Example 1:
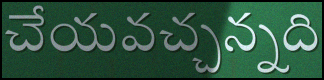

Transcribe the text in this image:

చేయవచ్చన్నది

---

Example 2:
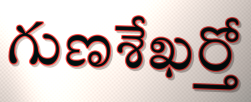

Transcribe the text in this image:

గుణశేఖర్తో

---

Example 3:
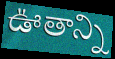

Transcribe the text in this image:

ఊతాన్ని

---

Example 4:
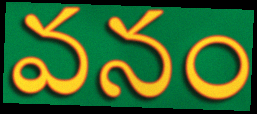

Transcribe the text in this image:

వనం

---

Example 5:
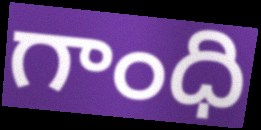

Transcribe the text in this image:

గాంధి